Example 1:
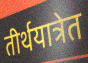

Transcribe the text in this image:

तीर्थयात्रेत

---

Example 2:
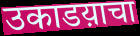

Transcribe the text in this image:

उकाडय़ाचा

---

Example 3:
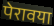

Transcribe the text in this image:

पेरावया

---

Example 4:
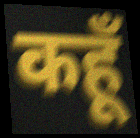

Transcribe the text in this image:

कहूँ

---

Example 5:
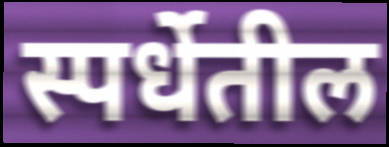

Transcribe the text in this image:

स्पर्धेतील